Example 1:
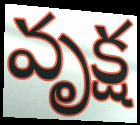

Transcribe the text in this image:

వృక్ష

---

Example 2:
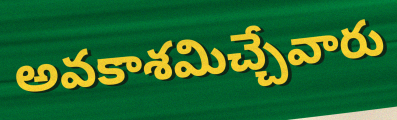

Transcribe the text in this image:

అవకాశమిచ్చేవారు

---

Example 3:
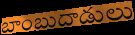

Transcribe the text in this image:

బాంబుదాడులు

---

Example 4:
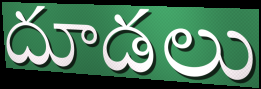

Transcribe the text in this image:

దూడలు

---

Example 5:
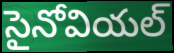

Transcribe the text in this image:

సైనోవియల్